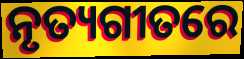
ନୃତ୍ୟଗୀତରେ